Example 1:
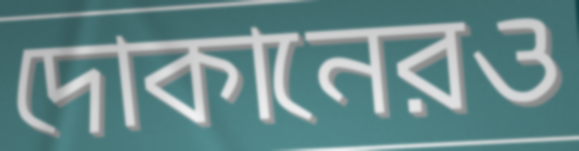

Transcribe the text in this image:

দোকানেরও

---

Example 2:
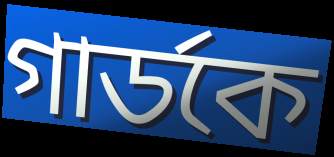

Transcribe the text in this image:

গার্ডকে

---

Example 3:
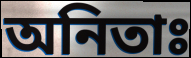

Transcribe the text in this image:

অনিতাঃ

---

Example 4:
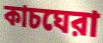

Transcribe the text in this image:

কাচঘেরা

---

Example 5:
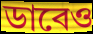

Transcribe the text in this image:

ডাবেও